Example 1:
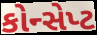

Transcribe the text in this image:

કોન્સેપ્ટ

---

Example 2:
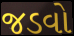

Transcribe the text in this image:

જડવો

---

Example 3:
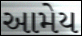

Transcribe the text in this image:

આમેય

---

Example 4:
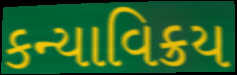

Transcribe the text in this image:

કન્યાવિક્રય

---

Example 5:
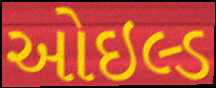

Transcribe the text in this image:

ઓઇલ્ડ